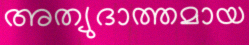
അത്യുദാത്തമായ